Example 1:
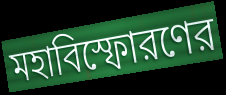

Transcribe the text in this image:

মহাবিস্ফোরণের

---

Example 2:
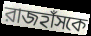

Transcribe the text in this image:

রাজহাঁসকে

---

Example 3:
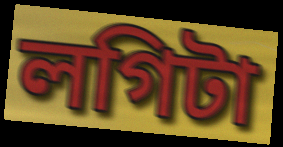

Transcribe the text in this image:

লগিটা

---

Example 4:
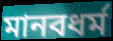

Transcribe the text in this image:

মানবধর্ম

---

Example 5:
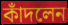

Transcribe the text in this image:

কাঁদলেন